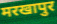
मरखापुर